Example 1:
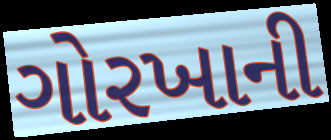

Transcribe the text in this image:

ગોરખાની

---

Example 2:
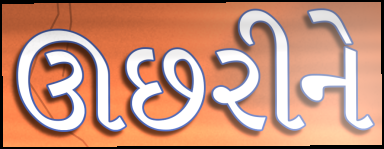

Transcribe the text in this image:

ઊછરીને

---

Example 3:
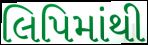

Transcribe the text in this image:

લિપિમાંથી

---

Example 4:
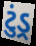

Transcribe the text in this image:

ટુંડ્ર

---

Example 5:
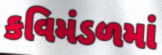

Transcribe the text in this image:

કવિમંડળમાં